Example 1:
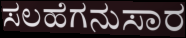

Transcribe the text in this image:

ಸಲಹೆಗನುಸಾರ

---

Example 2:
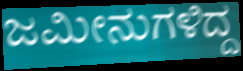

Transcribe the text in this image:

ಜಮೀನುಗಳಿದ್ದ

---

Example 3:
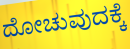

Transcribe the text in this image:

ದೋಚುವುದಕ್ಕೆ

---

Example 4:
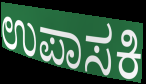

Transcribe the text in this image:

ಉಪಾಸಕಿ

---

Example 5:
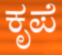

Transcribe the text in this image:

ಕೃಪೆ